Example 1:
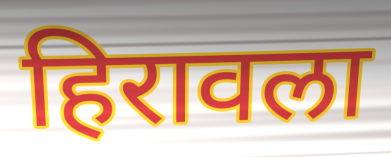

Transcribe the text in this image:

हिरावला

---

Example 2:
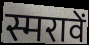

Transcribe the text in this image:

स्मरावें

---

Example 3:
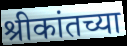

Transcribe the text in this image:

श्रीकांतच्या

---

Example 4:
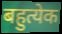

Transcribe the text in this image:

बहुत्येक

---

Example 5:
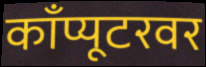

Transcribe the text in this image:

काँप्यूटरवर